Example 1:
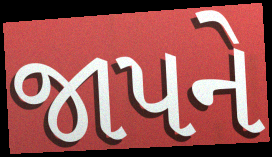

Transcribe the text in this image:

જાપને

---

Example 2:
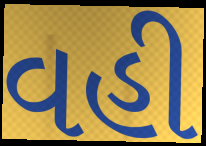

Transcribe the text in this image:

વહી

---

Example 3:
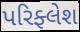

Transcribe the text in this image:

પરિફ્લેશ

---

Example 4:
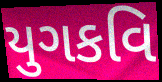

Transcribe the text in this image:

યુગકવિ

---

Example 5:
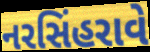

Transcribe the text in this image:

નરસિંહરાવે